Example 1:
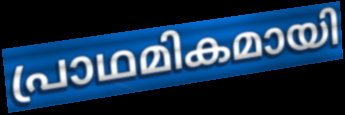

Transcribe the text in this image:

പ്രാഥമികമായി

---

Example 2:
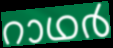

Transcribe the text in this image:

റാഥർ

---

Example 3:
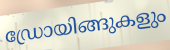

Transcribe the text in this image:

ഡ്രോയിങ്ങുകളും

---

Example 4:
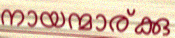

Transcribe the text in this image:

നായന്മാര്ക്കു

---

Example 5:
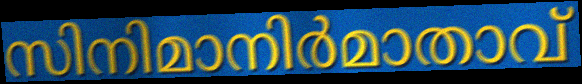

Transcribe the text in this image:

സിനിമാനിർമാതാവ്